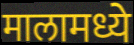
मालामध्ये